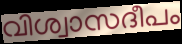
വിശ്വാസദീപം